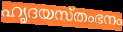
ഹൃദയസ്തംഭനം